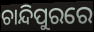
ଚାନ୍ଦିପୁରରେ